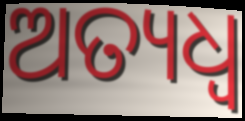
ଅତ୍ୟଧ୍ୱ